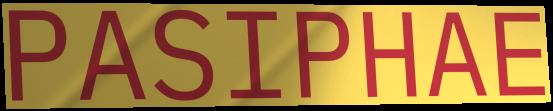
PASIPHAE